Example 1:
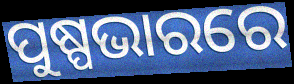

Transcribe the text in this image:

ପୁଷ୍ପଭାରରେ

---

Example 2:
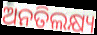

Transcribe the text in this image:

ଅନତିଲକ୍ଷ୍ୟ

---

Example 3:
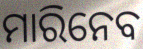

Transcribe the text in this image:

ମାରିନେବ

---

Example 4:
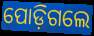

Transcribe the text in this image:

ପୋଡ଼ିଗଲେ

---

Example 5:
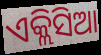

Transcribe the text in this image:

ଏକ୍ଲିସିଆ